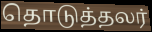
தொடுத்தலர்